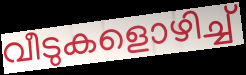
വീടുകളൊഴിച്ച്